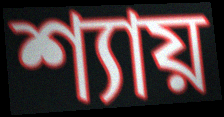
শ্যায়